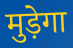
मुड़ेगा